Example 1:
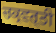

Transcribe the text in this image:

ਚਕ੍ਰਵਰ੍ਤੀ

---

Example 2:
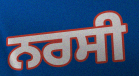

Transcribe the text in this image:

ਨਰਸੀ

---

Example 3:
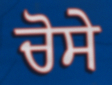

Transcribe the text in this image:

ਚੋਸੇ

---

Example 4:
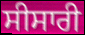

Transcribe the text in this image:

ਸੀਸਾਰੀ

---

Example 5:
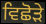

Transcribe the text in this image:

ਵਿਛੋੜੇ